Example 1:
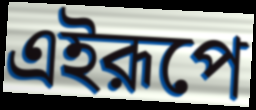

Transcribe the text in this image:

এইরূপে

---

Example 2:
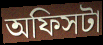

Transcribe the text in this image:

অফিসটা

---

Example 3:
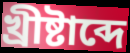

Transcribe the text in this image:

খ্রীষ্টাব্দে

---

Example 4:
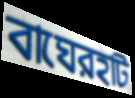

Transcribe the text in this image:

বাঘেরহাট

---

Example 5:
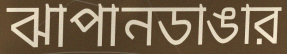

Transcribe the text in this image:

ঝাপানডাঙার